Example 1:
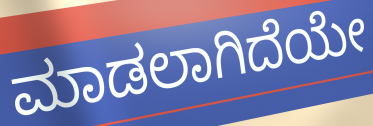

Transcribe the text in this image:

ಮಾಡಲಾಗಿದೆಯೇ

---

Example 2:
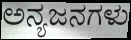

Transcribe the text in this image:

ಅನ್ಯಜನಗಳು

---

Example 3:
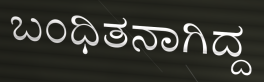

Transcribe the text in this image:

ಬಂಧಿತನಾಗಿದ್ದ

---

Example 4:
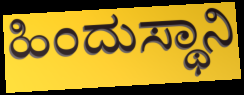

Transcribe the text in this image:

ಹಿಂದುಸ್ಥಾನಿ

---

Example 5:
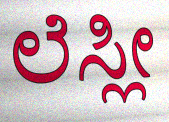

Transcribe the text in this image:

ಲೆಸ್ಲೀ